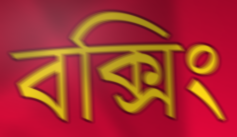
বক্সিং